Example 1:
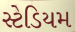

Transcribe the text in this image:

સ્ટેડિયમ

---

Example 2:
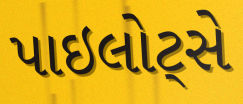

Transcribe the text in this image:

પાઇલોટ્સે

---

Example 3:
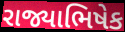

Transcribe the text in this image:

રાજ્યાભિષેક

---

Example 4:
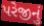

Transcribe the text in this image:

પરેજીનું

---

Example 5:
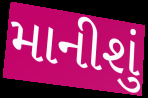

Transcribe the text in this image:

માનીશું